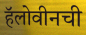
हॅलोवीनची